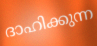
ദാഹിക്കുന്ന